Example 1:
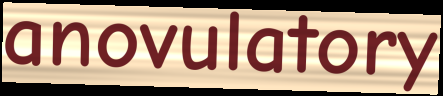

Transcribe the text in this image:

anovulatory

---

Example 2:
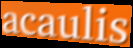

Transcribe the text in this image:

acaulis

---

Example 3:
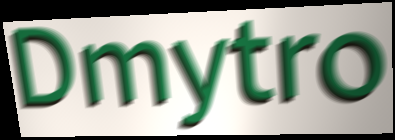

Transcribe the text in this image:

Dmytro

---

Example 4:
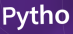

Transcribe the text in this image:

Pytho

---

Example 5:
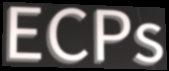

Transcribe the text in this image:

ECPs